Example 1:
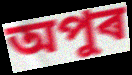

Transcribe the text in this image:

অপুৰ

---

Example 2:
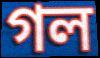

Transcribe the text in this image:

গল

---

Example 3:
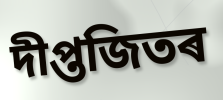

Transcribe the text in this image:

দীপ্তজিতৰ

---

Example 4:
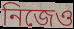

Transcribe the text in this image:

নিজেও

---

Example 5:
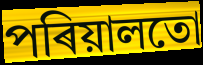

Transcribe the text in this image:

পৰিয়ালতো